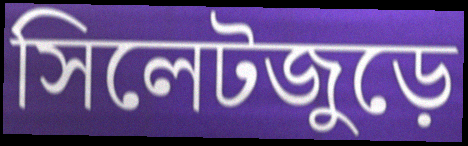
সিলেটজুড়ে